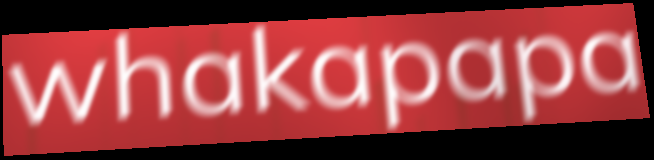
whakapapa